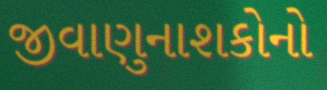
જીવાણુનાશકોનો